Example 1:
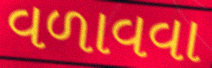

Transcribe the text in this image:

વળાવવા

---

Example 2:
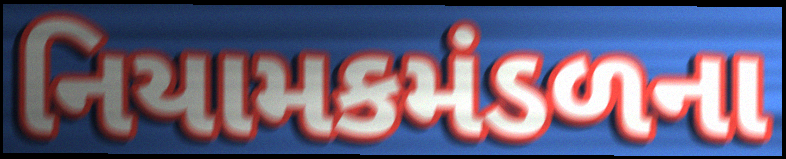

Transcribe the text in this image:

નિયામકમંડળના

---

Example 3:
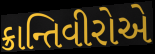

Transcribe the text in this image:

ક્રાન્તિવીરોએ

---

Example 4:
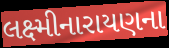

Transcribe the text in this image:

લક્ષ્મીનારાયણના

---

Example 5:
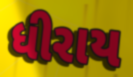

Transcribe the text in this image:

ધીરાય